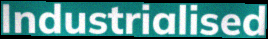
Industrialised